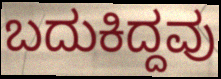
ಬದುಕಿದ್ದವು